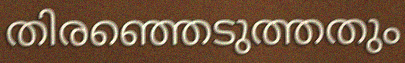
തിരഞ്ഞെടുത്തതും